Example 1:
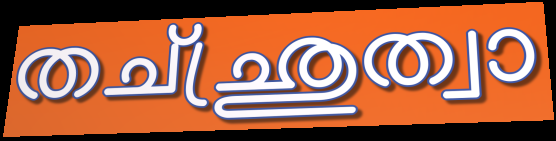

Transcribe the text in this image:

തച്ഛ്രുത്വാ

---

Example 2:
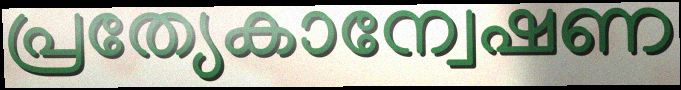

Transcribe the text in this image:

പ്രത്യേകാന്വേഷണ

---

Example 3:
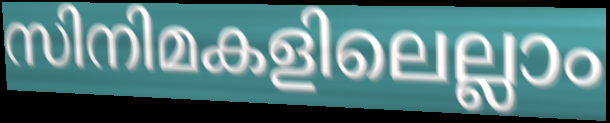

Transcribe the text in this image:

സിനിമകളിലെല്ലാം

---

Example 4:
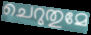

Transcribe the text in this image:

ചെറുതുമേ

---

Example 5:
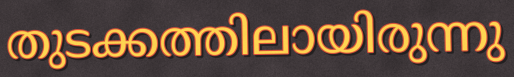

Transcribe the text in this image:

തുടക്കത്തിലായിരുന്നു